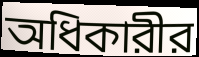
অধিকারীর